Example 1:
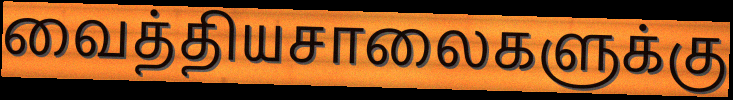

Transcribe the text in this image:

வைத்தியசாலைகளுக்கு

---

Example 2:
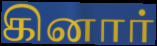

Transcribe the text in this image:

கினார்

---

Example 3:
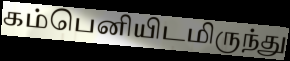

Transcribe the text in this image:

கம்பெனியிடமிருந்து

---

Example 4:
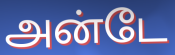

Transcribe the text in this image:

அன்டே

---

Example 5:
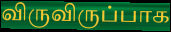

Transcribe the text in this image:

விருவிருப்பாக